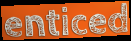
enticed